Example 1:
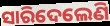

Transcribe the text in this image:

ସାରିଦେଲେଣି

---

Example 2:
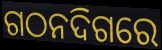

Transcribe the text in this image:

ଗଠନଦିଗରେ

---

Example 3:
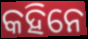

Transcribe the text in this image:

କହିନେ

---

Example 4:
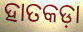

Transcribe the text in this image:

ହାତକଡ଼ା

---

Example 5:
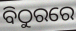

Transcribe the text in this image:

ବିଠୁରରେ